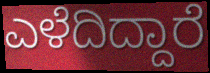
ಎಳೆದಿದ್ದಾರೆ